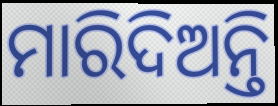
ମାରିଦିଅନ୍ତି